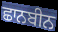
ਛਾਨਬੀਨ